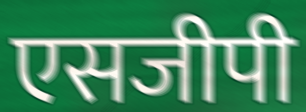
एसजीपी